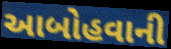
આબોહવાની